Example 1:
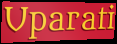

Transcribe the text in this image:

Uparati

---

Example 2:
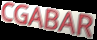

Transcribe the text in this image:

CGABAR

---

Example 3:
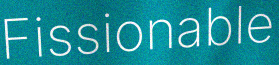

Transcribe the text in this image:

Fissionable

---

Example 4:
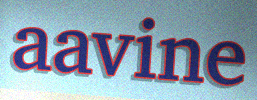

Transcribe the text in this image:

aavine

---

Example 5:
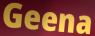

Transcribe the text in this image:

Geena